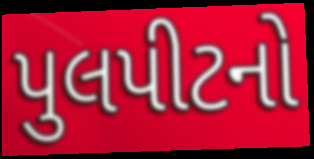
પુલપીટનો